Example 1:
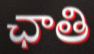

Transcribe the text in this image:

ఛాతి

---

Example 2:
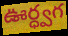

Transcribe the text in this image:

ఊర్ధ్వగ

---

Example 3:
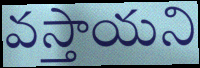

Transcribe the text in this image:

వస్తాయని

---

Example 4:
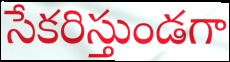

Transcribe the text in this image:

సేకరిస్తుండగా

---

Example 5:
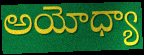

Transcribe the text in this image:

అయోధ్యా